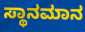
ಸ್ಥಾನಮಾನ